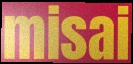
misai